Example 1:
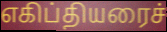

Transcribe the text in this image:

எகிப்தியரைச்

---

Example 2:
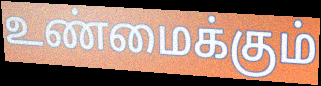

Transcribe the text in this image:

உண்மைக்கும்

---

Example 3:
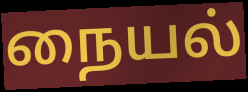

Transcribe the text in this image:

நையல்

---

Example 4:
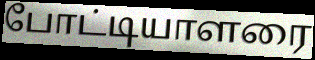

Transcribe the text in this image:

போட்டியாளரை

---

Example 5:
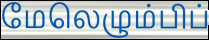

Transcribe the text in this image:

மேலெழும்பிப்